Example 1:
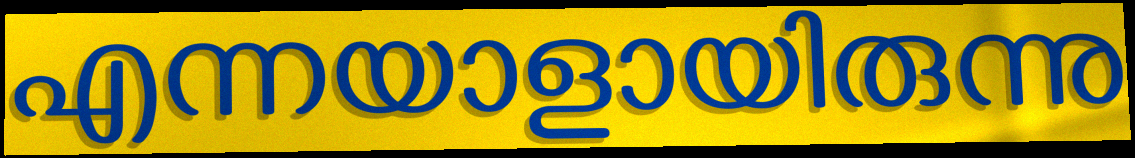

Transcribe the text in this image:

എന്നയാളായിരുന്നു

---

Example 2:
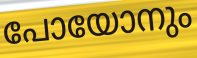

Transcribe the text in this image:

പോയോനും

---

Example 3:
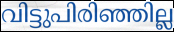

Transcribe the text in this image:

വിട്ടുപിരിഞ്ഞില്ല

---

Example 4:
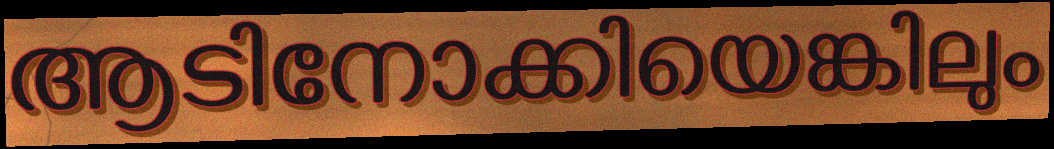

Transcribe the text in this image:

ആടിനോക്കിയെങ്കിലും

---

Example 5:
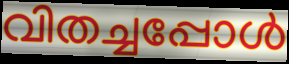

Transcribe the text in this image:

വിതച്ചപ്പോൾ